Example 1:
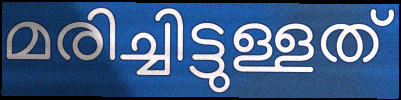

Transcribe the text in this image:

മരിച്ചിട്ടുള്ളത്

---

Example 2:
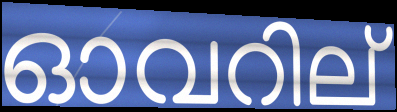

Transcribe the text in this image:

ഓവറില്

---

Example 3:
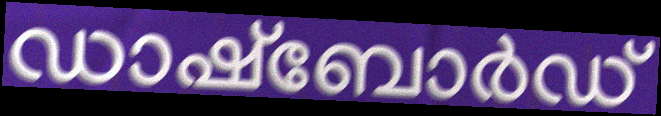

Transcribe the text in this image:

ഡാഷ്ബോർഡ്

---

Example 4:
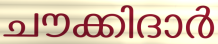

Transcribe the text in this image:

ചൗക്കിദാർ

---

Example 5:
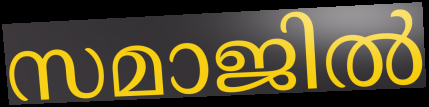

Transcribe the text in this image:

സമാജിൽ